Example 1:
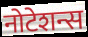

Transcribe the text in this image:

नोटेशन्स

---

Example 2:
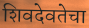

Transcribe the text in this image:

शिवदेवतेचा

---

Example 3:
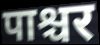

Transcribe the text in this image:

पाश्चर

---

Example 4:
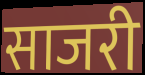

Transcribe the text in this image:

साजरी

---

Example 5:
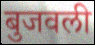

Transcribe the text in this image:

बुजवली